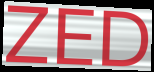
ZED